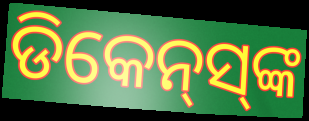
ଡିକେନ୍‌ସ୍‌ଙ୍କ